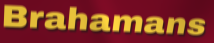
Brahamans